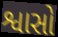
શ્વાસો